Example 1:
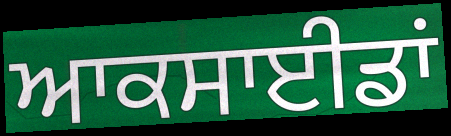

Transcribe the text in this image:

ਆਕਸਾਈਡਾਂ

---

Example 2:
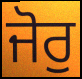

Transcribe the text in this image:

ਜੋਰੁ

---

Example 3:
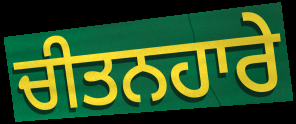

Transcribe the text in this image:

ਚੀਤਨਹਾਰੇ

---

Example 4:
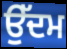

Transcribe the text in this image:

ਉੱਦਮ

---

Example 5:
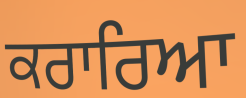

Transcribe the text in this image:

ਕਰਾਰਿਆ